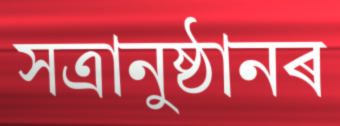
সত্ৰানুষ্ঠানৰ